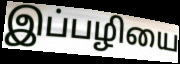
இப்பழியை